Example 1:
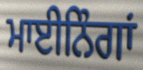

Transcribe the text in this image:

ਮਾਈਨਿੰਗਾਂ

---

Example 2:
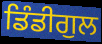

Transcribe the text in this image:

ਡਿੰਡੀਗੁਲ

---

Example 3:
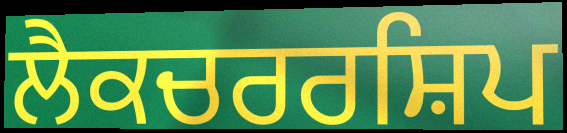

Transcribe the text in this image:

ਲੈਕਚਰਰਸ਼ਿਪ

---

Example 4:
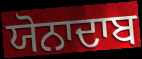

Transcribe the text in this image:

ਯੋਨਾਦਾਬ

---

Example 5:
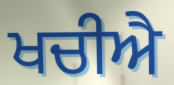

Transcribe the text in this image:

ਖਚੀਐ